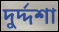
দুর্দ্দশা